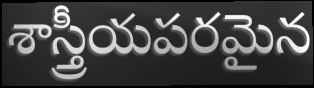
శాస్త్రీయపరమైన